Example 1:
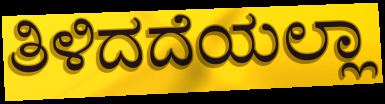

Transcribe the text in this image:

ತಿಳಿದದೆಯಲ್ಲಾ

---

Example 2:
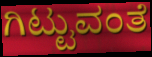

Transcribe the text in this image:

ಗಿಟ್ಟುವಂತೆ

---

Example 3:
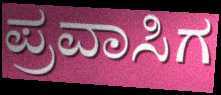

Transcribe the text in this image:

ಪ್ರವಾಸಿಗ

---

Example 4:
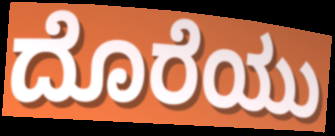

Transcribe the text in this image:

ದೊರೆಯು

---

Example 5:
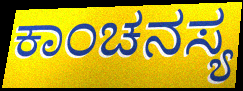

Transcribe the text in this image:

ಕಾಂಚನಸ್ಯ